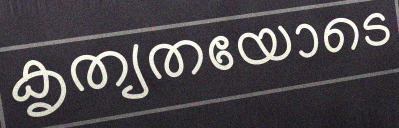
കൃത്യതയോടെ